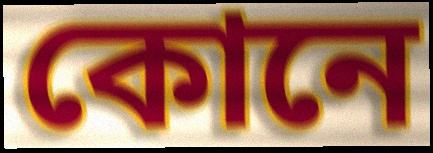
কোনে